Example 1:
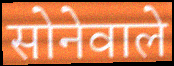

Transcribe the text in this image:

सोनेवाले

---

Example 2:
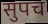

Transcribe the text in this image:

सुपच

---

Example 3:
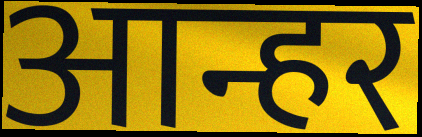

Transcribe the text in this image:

आन्हर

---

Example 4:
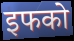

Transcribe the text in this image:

इफको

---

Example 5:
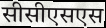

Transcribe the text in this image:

सीसीएसएस